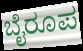
ಬೈರೂಪ